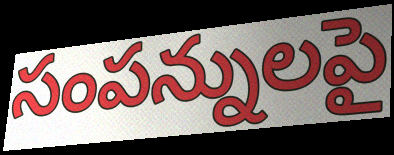
సంపన్నులపై